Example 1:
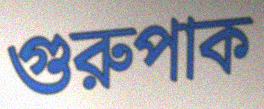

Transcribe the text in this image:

গুরুপাক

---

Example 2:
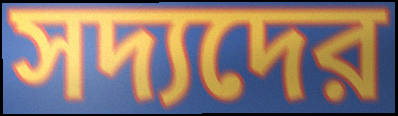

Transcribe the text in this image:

সদ্যদের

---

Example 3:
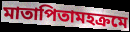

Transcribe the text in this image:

মাতাপিতামহক্রমে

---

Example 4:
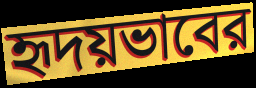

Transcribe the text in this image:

হৃদয়ভাবের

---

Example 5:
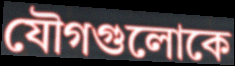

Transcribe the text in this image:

যৌগগুলোকে